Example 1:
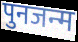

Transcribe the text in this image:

पुनजन्म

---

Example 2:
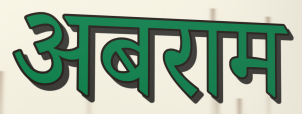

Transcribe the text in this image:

अबराम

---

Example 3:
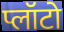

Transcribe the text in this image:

प्लॉटो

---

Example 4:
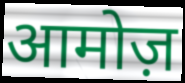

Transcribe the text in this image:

आमोज़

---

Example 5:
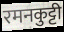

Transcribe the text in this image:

रमनकुट्टी